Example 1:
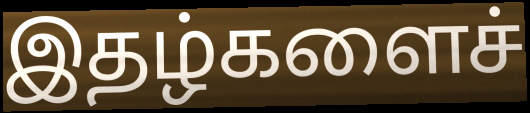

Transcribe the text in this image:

இதழ்களைச்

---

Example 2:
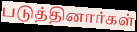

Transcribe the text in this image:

படுத்தினார்கள்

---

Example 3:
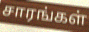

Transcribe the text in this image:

சாரங்கள்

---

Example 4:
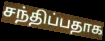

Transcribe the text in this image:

சந்திப்பதாக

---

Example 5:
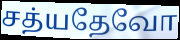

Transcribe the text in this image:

சத்யதேவோ